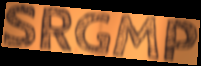
SRGMP